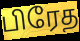
பிரேத